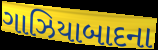
ગાઝિયાબાદના